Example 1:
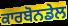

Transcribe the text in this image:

ਕਾਰਬੋਨਡੇਲ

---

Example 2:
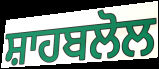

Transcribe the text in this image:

ਸ਼ਾਹਬਲੋਲ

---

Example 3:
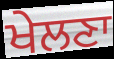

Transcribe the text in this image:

ਖੇਲਣਾ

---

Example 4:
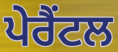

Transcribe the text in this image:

ਪੇਰੈਂਟਲ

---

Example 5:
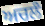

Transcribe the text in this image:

ਅਚਲੰ